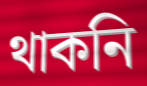
থাকনি